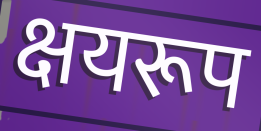
क्षयरूप